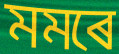
মমৰে